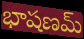
భాషణమ్